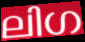
ലിഗ